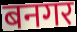
बनगर